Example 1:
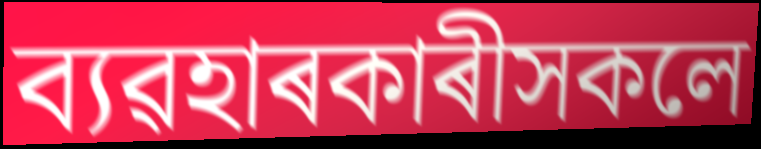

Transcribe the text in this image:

ব্যৱহাৰকাৰীসকলে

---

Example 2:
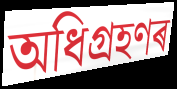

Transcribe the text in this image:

অধিগ্ৰহণৰ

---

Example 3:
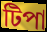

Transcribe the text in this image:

টিপা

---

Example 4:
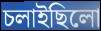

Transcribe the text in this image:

চলাইছিলো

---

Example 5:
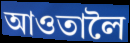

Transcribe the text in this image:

আওতালৈ